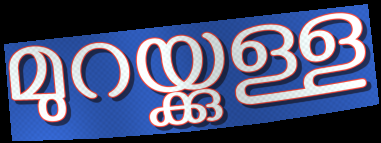
മുറയ്ക്കുള്ള